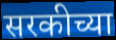
सरकीच्या